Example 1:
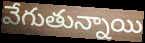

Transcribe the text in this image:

వేగుతున్నాయి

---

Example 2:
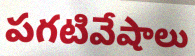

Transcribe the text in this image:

పగటివేషాలు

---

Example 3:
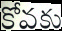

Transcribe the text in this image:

కోవకు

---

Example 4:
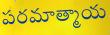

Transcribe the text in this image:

పరమాత్మాయ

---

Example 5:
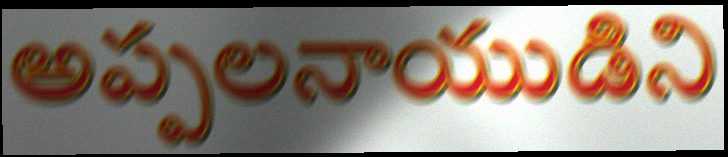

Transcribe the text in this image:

అప్పలనాయుడిని